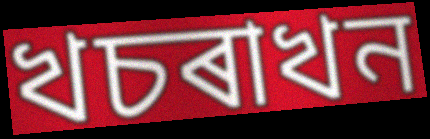
খচৰাখন